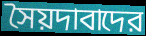
সৈয়দাবাদের